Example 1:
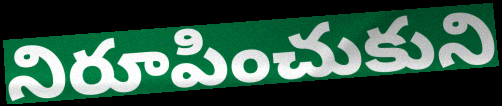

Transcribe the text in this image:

నిరూపించుకుని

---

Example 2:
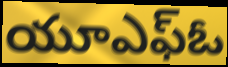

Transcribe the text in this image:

యూఎఫ్ఓ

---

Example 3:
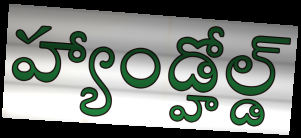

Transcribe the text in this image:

హ్యాండ్హోల్డ్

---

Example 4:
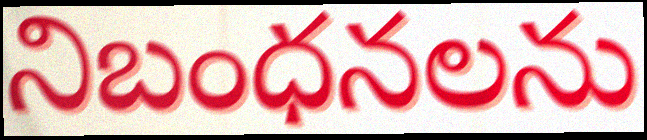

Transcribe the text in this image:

నిబంధనలను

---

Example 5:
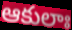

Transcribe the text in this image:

ఆకులాః